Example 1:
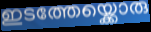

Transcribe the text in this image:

ഇടത്തേയ്ക്കൊരു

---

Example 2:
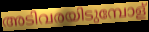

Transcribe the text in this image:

അടിവരയിടുമ്പോള്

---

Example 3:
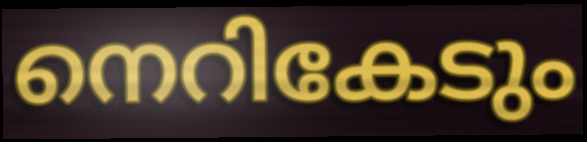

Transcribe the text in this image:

നെറികേടും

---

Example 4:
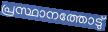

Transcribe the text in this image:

പ്രസ്ഥാനത്തോടു്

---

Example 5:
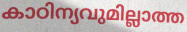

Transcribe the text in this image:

കാഠിന്യവുമില്ലാത്ത